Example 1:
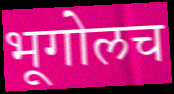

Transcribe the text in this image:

भूगोलच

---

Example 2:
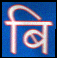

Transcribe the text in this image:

बि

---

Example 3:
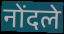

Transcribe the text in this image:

नोंदले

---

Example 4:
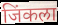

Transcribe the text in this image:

जिंकला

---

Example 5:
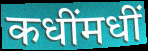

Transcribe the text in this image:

कधींमधीं